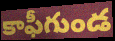
కాఫీగుండ